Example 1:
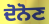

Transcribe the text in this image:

ਦੋਨੋਣ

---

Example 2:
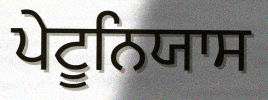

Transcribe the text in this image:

ਪੇਟੂਨਿਯਾਸ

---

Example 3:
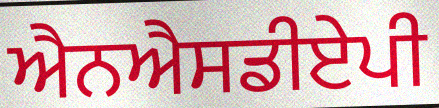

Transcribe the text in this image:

ਐਨਐਸਡੀਏਪੀ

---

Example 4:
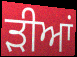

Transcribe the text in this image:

ੜੀਆਂ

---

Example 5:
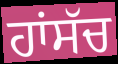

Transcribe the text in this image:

ਹਾਂਸੱਚ